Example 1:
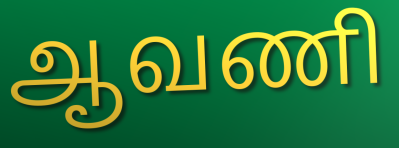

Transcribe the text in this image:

ஆவணி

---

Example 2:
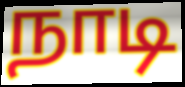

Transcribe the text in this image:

நாடி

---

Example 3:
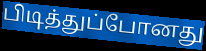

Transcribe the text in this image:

பிடித்துப்போனது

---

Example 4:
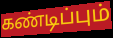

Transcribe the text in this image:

கண்டிப்பும்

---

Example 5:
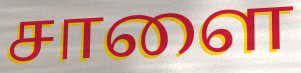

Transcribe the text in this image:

சாளை